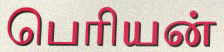
பெரியன்